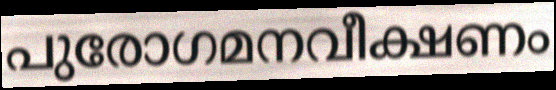
പുരോഗമനവീക്ഷണം